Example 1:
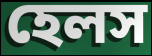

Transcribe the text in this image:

হেলস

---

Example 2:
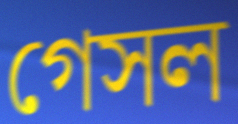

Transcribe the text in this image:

গেসল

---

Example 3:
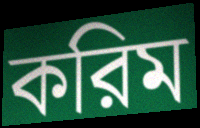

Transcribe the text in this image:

করিম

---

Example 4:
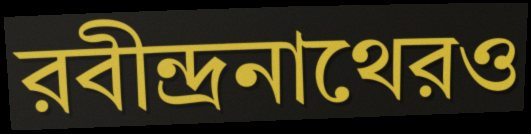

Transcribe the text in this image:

রবীন্দ্রনাথেরও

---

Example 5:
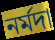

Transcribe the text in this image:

নর্মদা